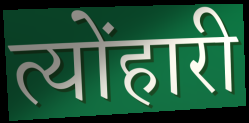
त्योंहारी